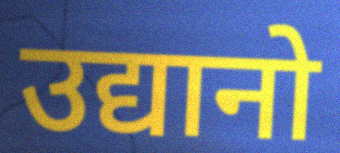
उद्यानो